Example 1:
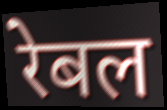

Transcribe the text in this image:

रेबल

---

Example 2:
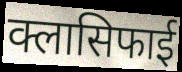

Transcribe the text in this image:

क्लासिफाई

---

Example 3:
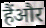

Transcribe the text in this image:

हैंऔर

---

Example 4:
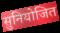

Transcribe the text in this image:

सुनियोजित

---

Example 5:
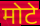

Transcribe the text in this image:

मोटे